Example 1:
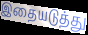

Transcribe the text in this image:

இதையடுத்து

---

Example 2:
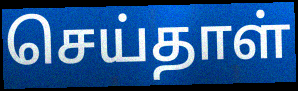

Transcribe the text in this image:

செய்தாள்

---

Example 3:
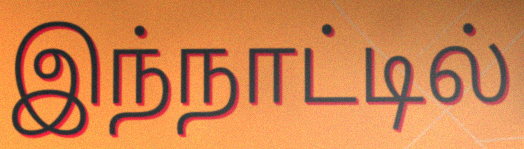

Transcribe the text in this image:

இந்நாட்டில்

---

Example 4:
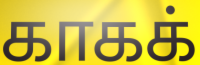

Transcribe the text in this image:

காகக்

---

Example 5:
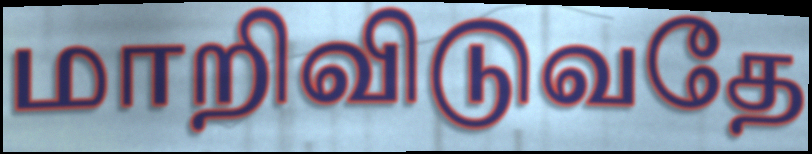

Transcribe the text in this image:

மாறிவிடுவதே